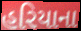
હરિયાના